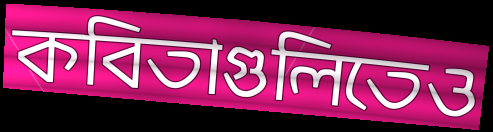
কবিতাগুলিতেও